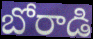
బోరాడి